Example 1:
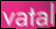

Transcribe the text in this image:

vatal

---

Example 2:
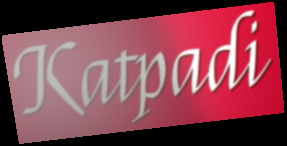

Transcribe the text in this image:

Katpadi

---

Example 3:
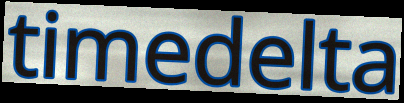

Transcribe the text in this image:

timedelta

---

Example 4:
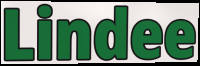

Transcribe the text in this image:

Lindee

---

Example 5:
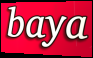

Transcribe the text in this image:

baya